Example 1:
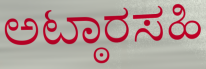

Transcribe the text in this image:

ಅಟ್ಠಾರಸಹಿ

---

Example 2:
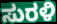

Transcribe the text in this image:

ಸುರಳಿ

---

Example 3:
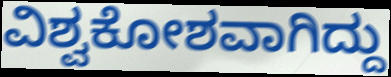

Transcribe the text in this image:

ವಿಶ್ವಕೋಶವಾಗಿದ್ದು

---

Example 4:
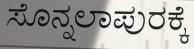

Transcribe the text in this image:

ಸೊನ್ನಲಾಪುರಕ್ಕೆ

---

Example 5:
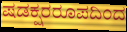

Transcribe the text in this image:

ಷಡಕ್ಷರರೂಪದಿಂದ